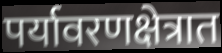
पर्यावरणक्षेत्रात